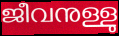
ജീവനുള്ളു